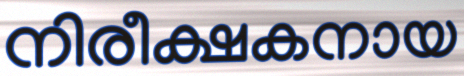
നിരീക്ഷകനായ